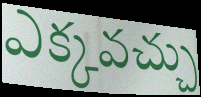
ఎక్కవచ్చు